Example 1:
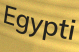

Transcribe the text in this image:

Egypti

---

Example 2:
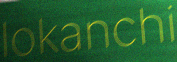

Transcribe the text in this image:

lokanchi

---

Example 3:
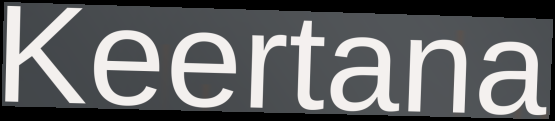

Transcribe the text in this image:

Keertana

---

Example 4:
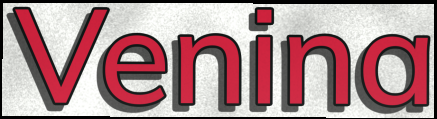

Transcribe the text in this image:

Venina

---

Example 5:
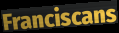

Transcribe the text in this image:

Franciscans